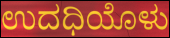
ಉದಧಿಯೊಳು